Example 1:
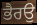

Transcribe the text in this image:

ਭੈਰਉ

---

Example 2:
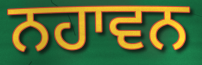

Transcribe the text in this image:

ਨਹਾਵਨ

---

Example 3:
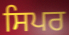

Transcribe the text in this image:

ਸਿਪਰ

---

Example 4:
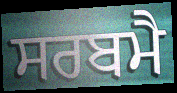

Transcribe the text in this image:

ਸਰਬਮੈ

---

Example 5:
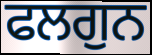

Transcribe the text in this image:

ਫਲਗੁਨ